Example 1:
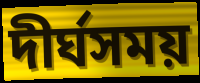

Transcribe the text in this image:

দীর্ঘসময়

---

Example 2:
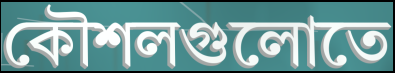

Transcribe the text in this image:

কৌশলগুলোতে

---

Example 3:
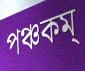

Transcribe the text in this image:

পঞ্চকম্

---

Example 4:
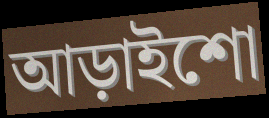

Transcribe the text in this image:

আড়াইশো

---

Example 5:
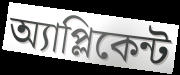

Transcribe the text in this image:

অ্যাপ্লিকেন্ট